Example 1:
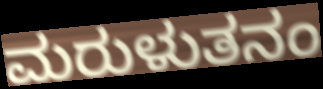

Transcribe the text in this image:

ಮರುಳುತನಂ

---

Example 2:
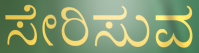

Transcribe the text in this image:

ಸೇರಿಸುವ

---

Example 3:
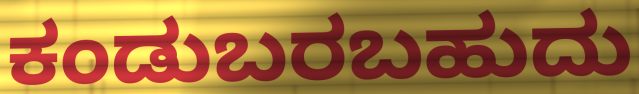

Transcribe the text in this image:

ಕಂಡುಬರಬಹುದು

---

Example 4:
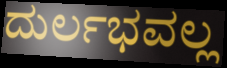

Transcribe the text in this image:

ದುರ್ಲಭವಲ್ಲ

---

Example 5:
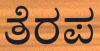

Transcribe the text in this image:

ತೆರಪ